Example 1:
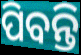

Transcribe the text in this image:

ପିବନ୍ତି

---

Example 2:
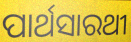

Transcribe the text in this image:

ପାର୍ଥସାରଥୀ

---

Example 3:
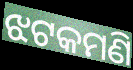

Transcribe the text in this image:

ଝଟକମଣି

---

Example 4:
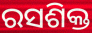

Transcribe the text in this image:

ରସଶିକ୍ତ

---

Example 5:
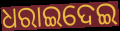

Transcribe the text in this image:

ଧରାଇଦେଇ